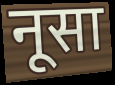
नूसा